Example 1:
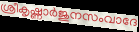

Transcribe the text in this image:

ശ്രീകൃഷ്ണാർജുനസംവാദേ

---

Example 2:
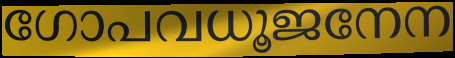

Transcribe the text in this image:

ഗോപവധൂജനേന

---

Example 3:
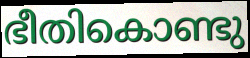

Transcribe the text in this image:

ഭീതികൊണ്ടു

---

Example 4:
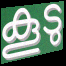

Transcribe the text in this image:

കൂടു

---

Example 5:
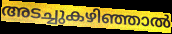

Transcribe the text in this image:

അടച്ചുകഴിഞ്ഞാൽ